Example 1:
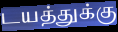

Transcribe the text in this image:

டயத்துக்கு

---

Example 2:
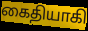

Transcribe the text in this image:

கைதியாகி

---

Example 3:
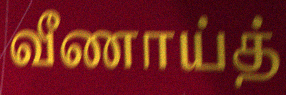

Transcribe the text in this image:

வீணாய்த்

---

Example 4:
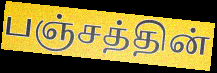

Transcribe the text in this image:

பஞ்சத்தின்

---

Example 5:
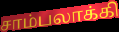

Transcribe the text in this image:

சாம்பலாக்கி